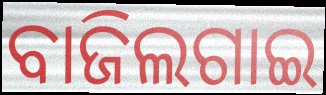
ବାଜିଲଗାଇ